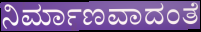
ನಿರ್ಮಾಣವಾದಂತೆ